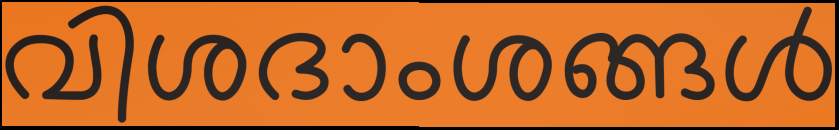
വിശദാംശങ്ങൾ